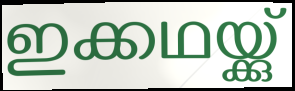
ഇക്കഥയ്ക്കു്